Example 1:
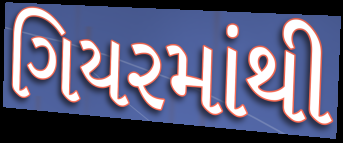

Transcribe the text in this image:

ગિયરમાંથી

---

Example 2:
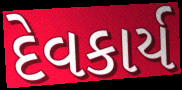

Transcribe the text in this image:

દેવકાર્ય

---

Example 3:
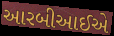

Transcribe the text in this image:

આરબીઆઈએ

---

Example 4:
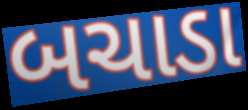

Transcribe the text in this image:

બચાડા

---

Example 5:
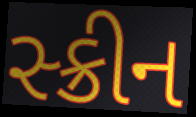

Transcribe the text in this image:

સ્ક્રીન